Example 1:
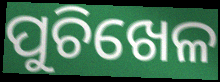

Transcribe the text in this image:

ପୁଚିଖେଳ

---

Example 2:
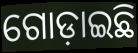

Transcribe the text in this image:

ଗୋଡ଼ାଇଛି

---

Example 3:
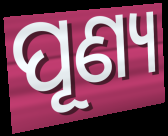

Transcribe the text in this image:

ପୂଣ୍ୟ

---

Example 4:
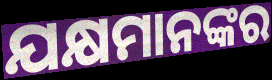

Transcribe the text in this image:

ଯକ୍ଷମାନଙ୍କର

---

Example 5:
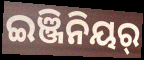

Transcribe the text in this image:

ଇଞ୍ଜିନିୟର୍